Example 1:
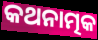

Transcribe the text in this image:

କଥନାତ୍ମକ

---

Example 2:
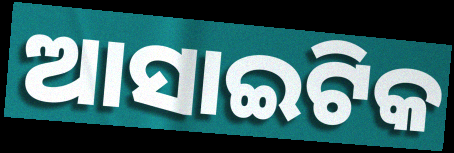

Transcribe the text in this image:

ଆସାଇଟିକ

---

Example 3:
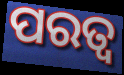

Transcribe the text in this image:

ପରତ୍ୱ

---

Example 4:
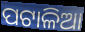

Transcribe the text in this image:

ପଟାଳିଆ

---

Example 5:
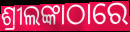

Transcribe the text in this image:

ଶ୍ରୀଲଙ୍କାଠାରେ